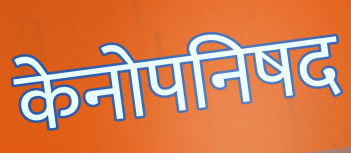
केनोपनिषद